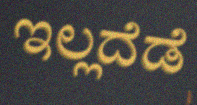
ಇಲ್ಲದೆಡೆ